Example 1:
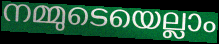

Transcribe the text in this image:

നമ്മുടെയെല്ലാം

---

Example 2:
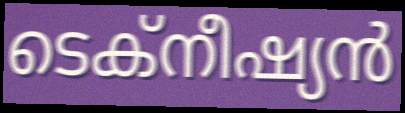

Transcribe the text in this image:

ടെക്നീഷ്യൻ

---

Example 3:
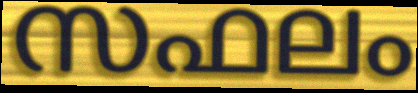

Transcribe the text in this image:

സഫലം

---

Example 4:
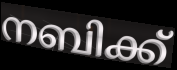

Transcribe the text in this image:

നബിക്ക്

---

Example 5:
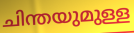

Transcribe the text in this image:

ചിന്തയുമുള്ള